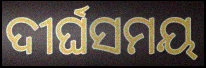
ଦୀର୍ଘସମୟ